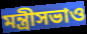
মন্ত্রীসভাও